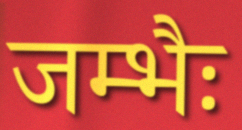
जम्भैः